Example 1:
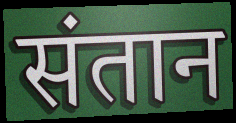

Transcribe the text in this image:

संतान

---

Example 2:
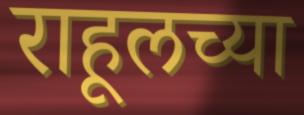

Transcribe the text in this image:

राहूलच्या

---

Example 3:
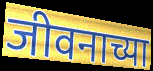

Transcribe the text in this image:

जीवनाच्या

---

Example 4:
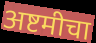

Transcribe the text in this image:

अष्टमीचा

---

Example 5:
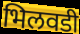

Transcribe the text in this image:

भिलवडी